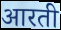
आरती